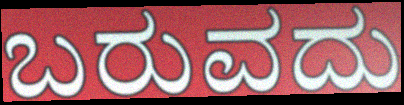
ಬರುವದು